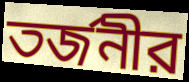
তর্জনীর